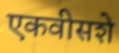
एकवीसशे